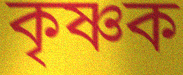
কৃষ্ণক